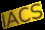
IACS